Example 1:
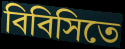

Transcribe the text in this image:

বিবিসিতে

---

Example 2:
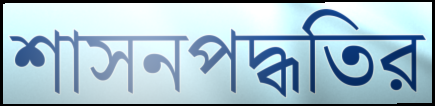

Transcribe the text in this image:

শাসনপদ্ধতির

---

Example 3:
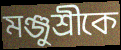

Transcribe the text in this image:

মঞ্জুশ্রীকে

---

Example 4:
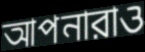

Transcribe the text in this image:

আপনারাও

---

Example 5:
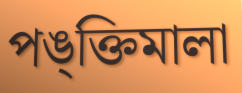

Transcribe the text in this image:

পঙ্‌ক্তিমালা